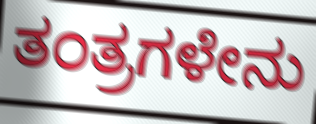
ತಂತ್ರಗಳೇನು